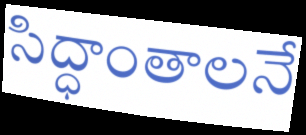
సిద్ధాంతాలనే